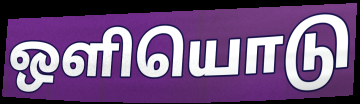
ஒளியொடு